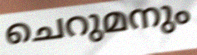
ചെറുമനും